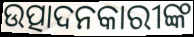
ଉତ୍ପାଦନକାରୀଙ୍କ